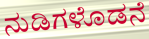
ನುಡಿಗಳೊಡನೆ